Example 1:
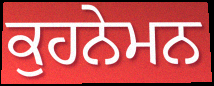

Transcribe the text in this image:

ਕੁਹਨੇਮਨ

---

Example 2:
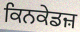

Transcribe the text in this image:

ਕਿਨਕੇਡਜ਼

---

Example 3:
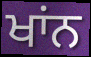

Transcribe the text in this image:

ਖਾਂਨ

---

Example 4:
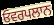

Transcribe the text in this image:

ਓਵਰਪਲਾਨ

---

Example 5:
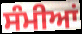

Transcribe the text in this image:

ਸੰਮੀਆਂ